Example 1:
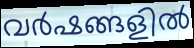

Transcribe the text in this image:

വർഷങ്ങളിൽ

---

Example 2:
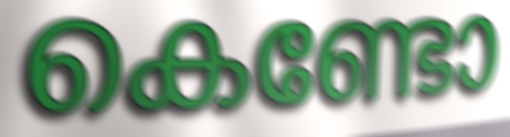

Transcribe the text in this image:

കെണ്ടോ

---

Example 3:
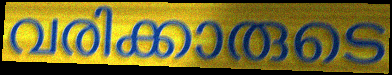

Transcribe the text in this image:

വരിക്കാരുടെ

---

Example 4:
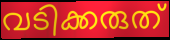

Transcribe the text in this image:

വടിക്കരുത്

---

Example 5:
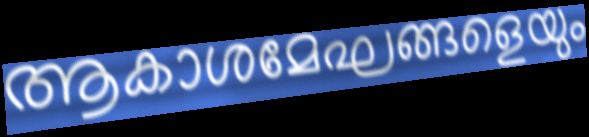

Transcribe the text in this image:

ആകാശമേഘങ്ങളെയും